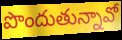
పొందుతున్నావో